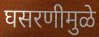
घसरणीमुळे